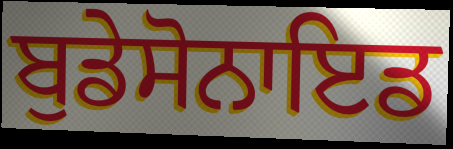
ਬੁਡੇਸੋਨਾਇਡ